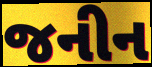
જનીન